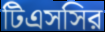
টিএসসির